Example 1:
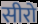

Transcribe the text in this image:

सीरो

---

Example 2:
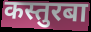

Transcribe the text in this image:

कस्तुरबा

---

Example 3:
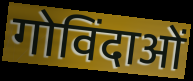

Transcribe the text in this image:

गोविंदाओं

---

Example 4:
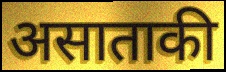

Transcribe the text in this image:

असाताकी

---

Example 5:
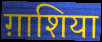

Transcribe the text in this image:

ग़ाशिया